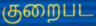
குறைபட